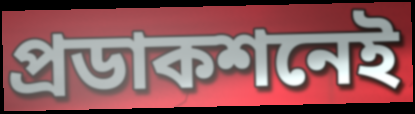
প্রডাকশনেই